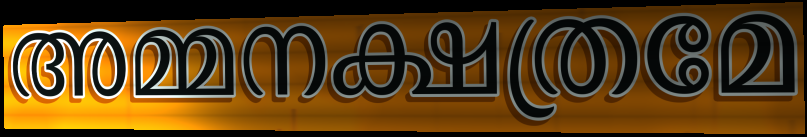
അമ്മനക്ഷത്രമേ